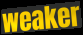
weaker